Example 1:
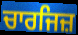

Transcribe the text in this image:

ਚਾਰਜਿਜ਼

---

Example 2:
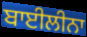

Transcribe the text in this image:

ਬਾਈਲੀਨਾ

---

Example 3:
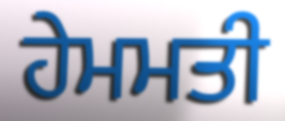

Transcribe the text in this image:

ਹੇਮਮਤੀ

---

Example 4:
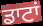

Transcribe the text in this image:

ਡਾਟਾਂ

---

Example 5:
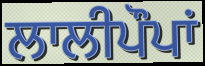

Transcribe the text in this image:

ਲਾਲੀਪੌਪਾਂ